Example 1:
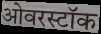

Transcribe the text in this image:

ओवरस्टॉक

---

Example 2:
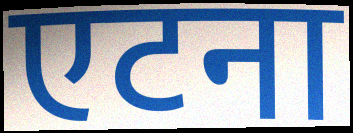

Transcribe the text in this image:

एटना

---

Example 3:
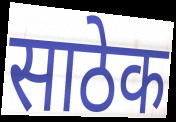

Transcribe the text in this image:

साठेक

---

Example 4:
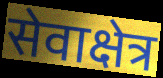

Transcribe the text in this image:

सेवाक्षेत्र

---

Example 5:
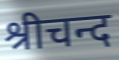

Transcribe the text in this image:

श्रीचन्द